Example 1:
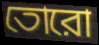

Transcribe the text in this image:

তোরো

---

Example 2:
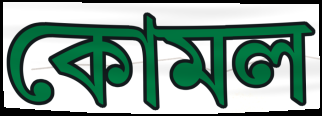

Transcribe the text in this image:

কোমল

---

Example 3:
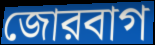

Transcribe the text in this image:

জোরবাগ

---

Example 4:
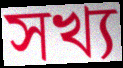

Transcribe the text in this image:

সখ্য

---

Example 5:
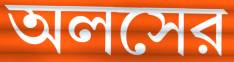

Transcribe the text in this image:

অলসের